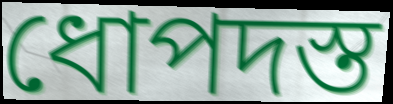
ধোপদস্ত